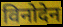
विनोदेन